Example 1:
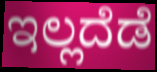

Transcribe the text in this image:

ಇಲ್ಲದೆಡೆ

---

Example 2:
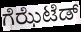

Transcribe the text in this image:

ಗೆಝೆಟೆಡ್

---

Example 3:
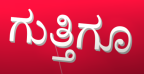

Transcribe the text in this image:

ಗುತ್ತಿಗೂ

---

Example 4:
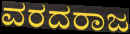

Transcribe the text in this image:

ವರದರಾಜ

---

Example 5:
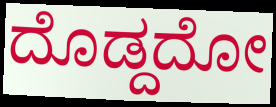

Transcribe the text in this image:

ದೊಡ್ದದೋ